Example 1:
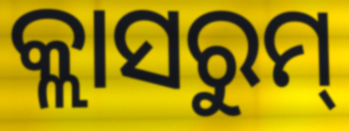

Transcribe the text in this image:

କ୍ଲାସରୁମ୍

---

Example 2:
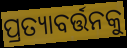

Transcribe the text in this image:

ପ୍ରତ୍ୟାବର୍ତ୍ତନକୁ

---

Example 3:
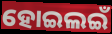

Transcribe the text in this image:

ହୋଇଲଇଁ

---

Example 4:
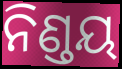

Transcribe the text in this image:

ନିଣ୍ଡୟ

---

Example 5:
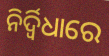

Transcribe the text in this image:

ନିର୍ଦ୍ୱିଧାରେ